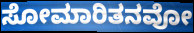
ಸೋಮಾರಿತನವೋ